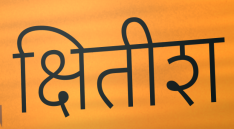
क्षितीश